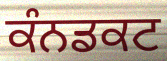
ਕੰਨਡਕਟ